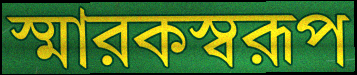
স্মারকস্বরূপ